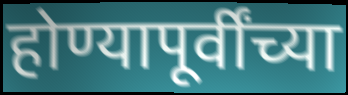
होण्यापूर्वींच्या